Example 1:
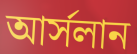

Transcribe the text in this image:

আর্সলান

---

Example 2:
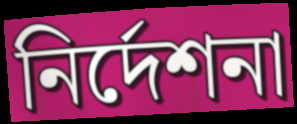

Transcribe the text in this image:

নির্দেশনা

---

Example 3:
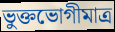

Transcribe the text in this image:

ভুক্তভোগীমাত্র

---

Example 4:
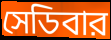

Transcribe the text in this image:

সেডিবার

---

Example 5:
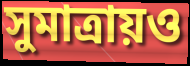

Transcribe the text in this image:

সুমাত্রায়ও